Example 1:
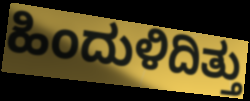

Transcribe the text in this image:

ಹಿಂದುಳಿದಿತ್ತು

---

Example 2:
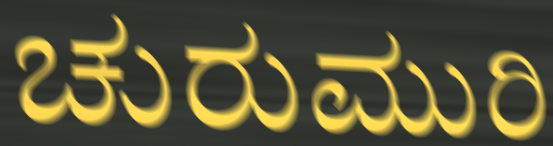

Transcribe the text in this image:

ಚುರುಮುರಿ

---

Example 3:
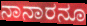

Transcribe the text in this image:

ನಾನಾರನೂ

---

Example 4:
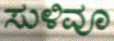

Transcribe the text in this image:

ಸುಳಿವೂ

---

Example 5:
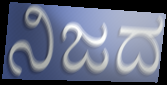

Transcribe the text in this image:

ನಿಜದ